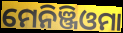
ମେନିଞ୍ଜିଓମା